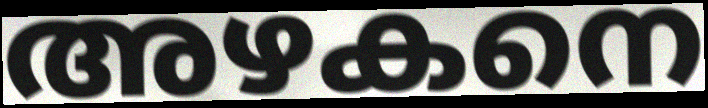
അഴകനെ